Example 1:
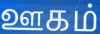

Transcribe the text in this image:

ஊகம்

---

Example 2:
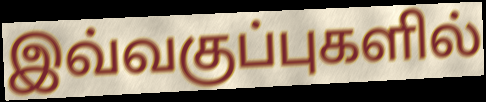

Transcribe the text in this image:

இவ்வகுப்புகளில்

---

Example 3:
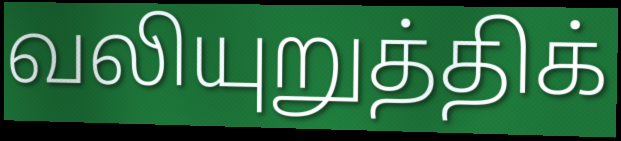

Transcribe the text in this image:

வலியுறுத்திக்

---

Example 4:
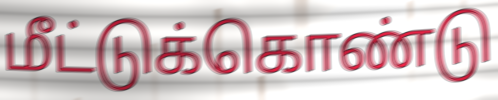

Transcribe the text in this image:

மீட்டுக்கொண்டு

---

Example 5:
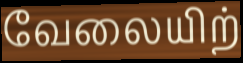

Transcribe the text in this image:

வேலையிற்